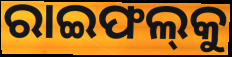
ରାଇଫଲ୍‍କୁ